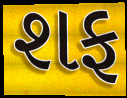
શફ